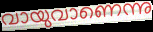
വായുവാണെന്നു